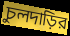
চুলদাড়ির